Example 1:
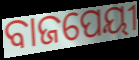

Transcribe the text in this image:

ବାଜପେୟୀ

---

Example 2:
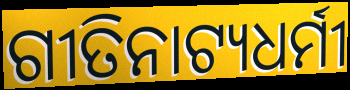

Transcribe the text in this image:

ଗୀତିନାଟ୍ୟଧର୍ମୀ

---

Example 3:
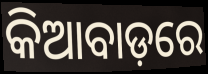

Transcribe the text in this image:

କିଆବାଡ଼ରେ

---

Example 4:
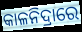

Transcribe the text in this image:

କାଳନିଦ୍ରାରେ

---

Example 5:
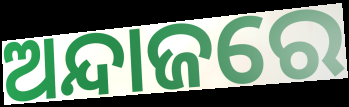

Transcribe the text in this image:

ଅନ୍ଦାଜରେ